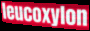
leucoxylon